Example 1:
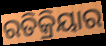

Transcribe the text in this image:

ରତିକ୍ରିୟାର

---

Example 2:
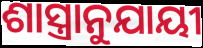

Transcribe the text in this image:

ଶାସ୍ତ୍ରାନୁଯାୟୀ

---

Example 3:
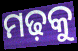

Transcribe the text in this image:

ମଢ଼କୁ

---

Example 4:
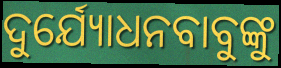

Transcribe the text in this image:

ଦୁର୍ଯ୍ୟୋଧନବାବୁଙ୍କୁ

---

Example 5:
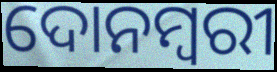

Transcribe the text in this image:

ଦୋନମ୍ବରୀ